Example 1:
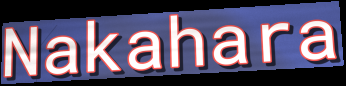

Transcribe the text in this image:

Nakahara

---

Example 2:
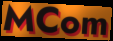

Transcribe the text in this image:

MCom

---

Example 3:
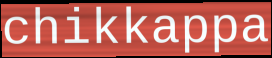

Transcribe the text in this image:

chikkappa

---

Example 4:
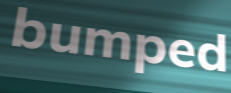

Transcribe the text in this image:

bumped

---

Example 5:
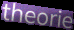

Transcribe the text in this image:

theorie